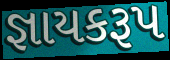
જ્ઞાયકરૂપ